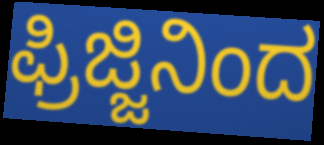
ಫ್ರಿಜ್ಜಿನಿಂದ